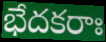
భేదకరాః